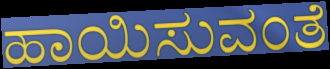
ಹಾಯಿಸುವಂತೆ